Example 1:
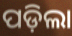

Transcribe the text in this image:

ପଡ଼ିଲା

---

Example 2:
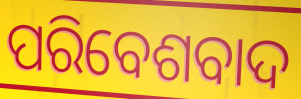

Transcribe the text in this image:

ପରିବେଶବାଦ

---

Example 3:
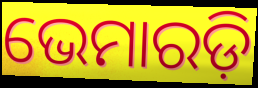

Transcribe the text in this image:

ଭେମାରଡ଼ି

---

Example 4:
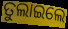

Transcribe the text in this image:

ତୁଲାଇଲେ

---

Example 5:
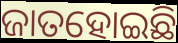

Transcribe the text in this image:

ଜାତହୋଇଛି